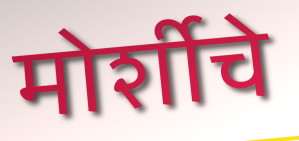
मोर्शीचे